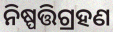
ନିଷ୍ପତ୍ତିଗ୍ରହଣ